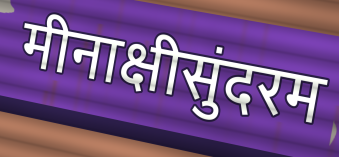
मीनाक्षीसुंदरम